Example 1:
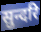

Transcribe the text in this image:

सुन्दरि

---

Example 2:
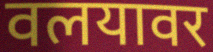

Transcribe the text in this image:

वलयावर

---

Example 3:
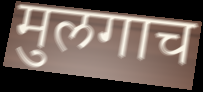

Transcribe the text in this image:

मुलगाच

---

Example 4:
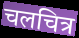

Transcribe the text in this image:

चलचित्र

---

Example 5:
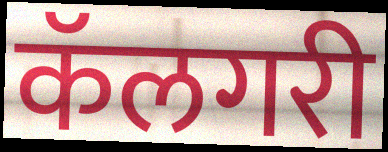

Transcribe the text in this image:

कॅलगरी